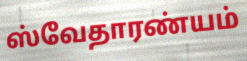
ஸ்வேதாரண்யம்